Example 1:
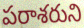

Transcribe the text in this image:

పరాశరుని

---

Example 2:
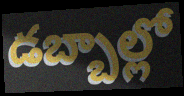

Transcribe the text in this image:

డబ్బాల్లో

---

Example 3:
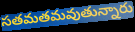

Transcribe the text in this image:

సతమతమవుతున్నారు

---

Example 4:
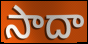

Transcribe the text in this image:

సాదా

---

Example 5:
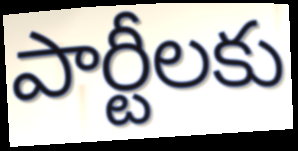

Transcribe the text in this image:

పార్టీలకు